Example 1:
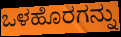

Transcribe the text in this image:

ಒಳಹೊರಗನ್ನು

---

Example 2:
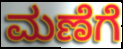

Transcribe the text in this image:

ಮಣೆಗೆ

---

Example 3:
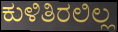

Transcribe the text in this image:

ಕುಳಿತಿರಲಿಲ್ಲ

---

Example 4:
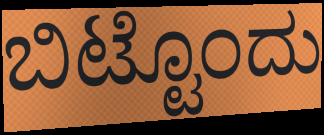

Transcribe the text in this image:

ಬಿಟ್ಟೊಂದು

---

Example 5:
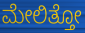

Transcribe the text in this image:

ಮೇಲಿತ್ತೋ